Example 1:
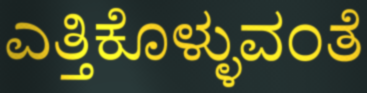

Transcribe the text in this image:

ಎತ್ತಿಕೊಳ್ಳುವಂತೆ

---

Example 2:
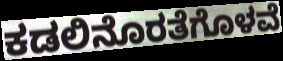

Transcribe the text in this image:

ಕಡಲಿನೊರತೆಗೊಳವೆ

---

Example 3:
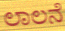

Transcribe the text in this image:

ಲಾಲನೆ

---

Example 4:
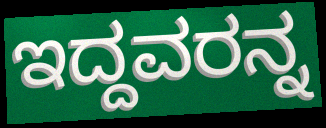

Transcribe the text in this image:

ಇದ್ದವರನ್ನ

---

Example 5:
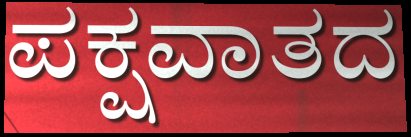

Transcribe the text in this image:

ಪಕ್ಷವಾತದ